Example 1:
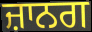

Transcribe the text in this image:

ਜ਼ਾਨਗ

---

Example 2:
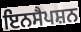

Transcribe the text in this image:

ਇਨਸੈਪਸ਼ਨ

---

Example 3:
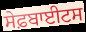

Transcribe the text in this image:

ਸੇਫ਼ਬਾਈਟਸ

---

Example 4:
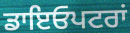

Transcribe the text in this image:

ਡਾਇਓਪਟਰਾਂ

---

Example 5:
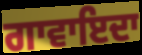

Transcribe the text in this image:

ਗਾਵਾਇਦਾ